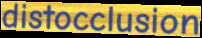
distocclusion